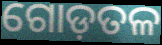
ଗୋଡ଼ତଳ